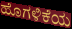
ಹೊಗಳಿಕೆಯ